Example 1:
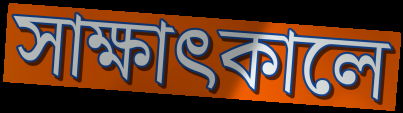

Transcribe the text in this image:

সাক্ষাৎকালে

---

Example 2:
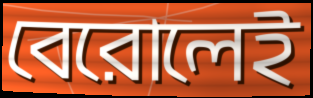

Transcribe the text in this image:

বেরোলেই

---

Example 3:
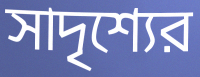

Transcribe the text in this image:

সাদৃশ্যের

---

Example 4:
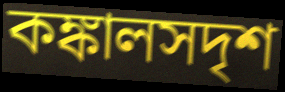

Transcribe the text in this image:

কঙ্কালসদৃশ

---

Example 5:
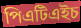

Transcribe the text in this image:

পিএটিএইচ